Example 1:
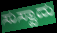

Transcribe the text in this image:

ಸುಸ್ವಾದು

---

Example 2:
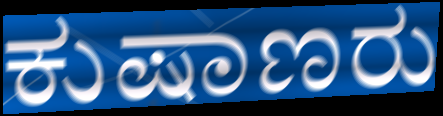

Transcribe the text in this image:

ಕುಷಾಣರು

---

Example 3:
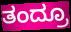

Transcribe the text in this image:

ತಂದ್ರೂ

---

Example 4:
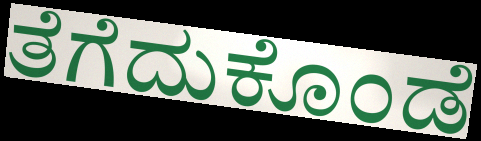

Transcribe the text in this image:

ತೆಗೆದುಕೊಂಡೆ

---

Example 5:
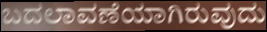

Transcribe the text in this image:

ಬದಲಾವಣೆಯಾಗಿರುವುದು